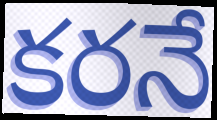
కరనే